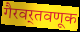
गैरवर्तवणूक